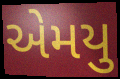
એમયુ